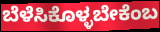
ಬೆಳೆಸಿಕೊಳ್ಳಬೇಕೆಂಬ